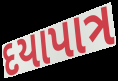
દયાપાત્ર